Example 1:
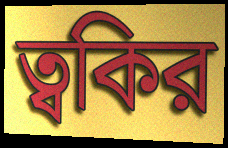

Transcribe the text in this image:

ত্বকির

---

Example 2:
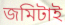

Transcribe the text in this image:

জমিটাই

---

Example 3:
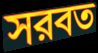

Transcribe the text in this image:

সরবত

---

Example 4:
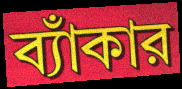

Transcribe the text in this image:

ব্যাঁকার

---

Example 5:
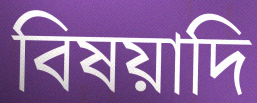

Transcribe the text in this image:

বিষয়াদি